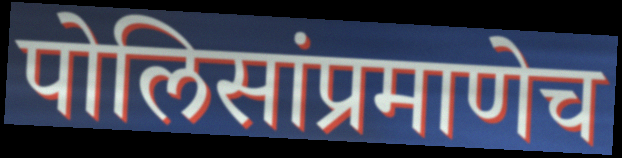
पोलिसांप्रमाणेच